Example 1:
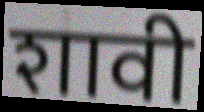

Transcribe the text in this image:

शावी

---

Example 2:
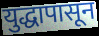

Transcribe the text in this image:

युद्धापासून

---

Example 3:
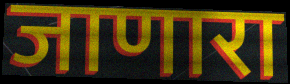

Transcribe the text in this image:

जाणारा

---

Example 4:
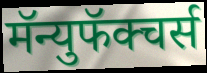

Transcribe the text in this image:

मॅन्युफॅक्चर्स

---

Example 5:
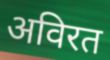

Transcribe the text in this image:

अविरत